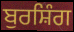
ਬੁਰਸ਼ਿੰਗ